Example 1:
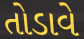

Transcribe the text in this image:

તોડાવે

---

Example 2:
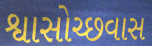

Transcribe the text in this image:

શ્વાસોચ્છવાસ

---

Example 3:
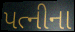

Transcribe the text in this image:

પત્નીના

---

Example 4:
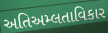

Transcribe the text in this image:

અતિઅમ્લતાવિકાર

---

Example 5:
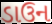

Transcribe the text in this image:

ડાઉન